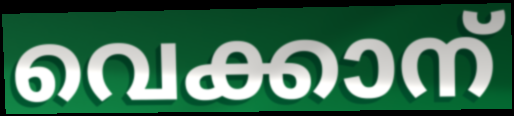
വെക്കാന്